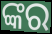
ଙ୍କର